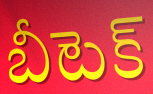
బీటెక్